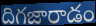
దిగజారాడం